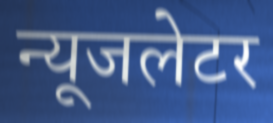
न्यूजलेटर